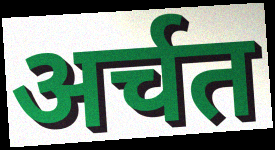
अर्चत